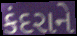
કંદરાને